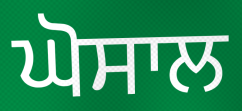
ਘੋਸਾਲ